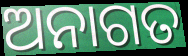
ଅନାଗତ